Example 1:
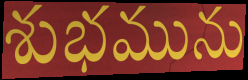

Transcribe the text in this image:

శుభమును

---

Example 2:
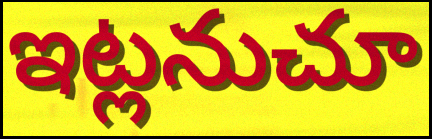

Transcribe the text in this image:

ఇట్లనుచూ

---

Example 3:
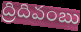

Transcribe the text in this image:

ద్రిదివంబు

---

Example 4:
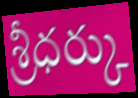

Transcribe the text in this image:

శ్రీధర్కు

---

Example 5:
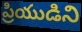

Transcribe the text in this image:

ప్రియుడిని